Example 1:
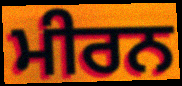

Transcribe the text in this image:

ਮੀਰਨ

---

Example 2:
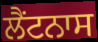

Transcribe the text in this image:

ਲੈਂਟਨਾਸ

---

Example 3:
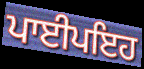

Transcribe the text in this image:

ਪਾਈਪਇਹ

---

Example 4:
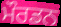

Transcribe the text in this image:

ਮੌਰਡਨ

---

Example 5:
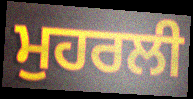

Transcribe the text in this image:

ਮੁਹਰਲੀ